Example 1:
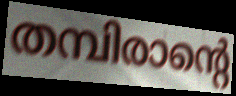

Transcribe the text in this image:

തമ്പിരാന്റെ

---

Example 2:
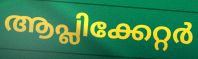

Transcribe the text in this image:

ആപ്ലിക്കേറ്റർ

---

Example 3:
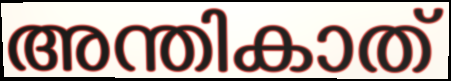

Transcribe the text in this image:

അന്തികാത്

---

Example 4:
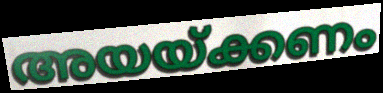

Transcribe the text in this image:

അയയ്ക്കണം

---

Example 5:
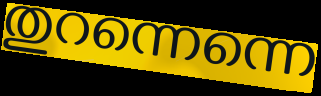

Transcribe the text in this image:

തുറന്നെന്നെ